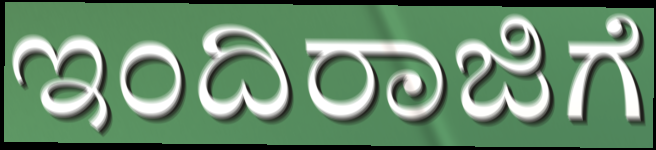
ಇಂದಿರಾಜಿಗೆ